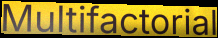
Multifactorial